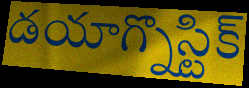
డయాగ్నొస్టిక్